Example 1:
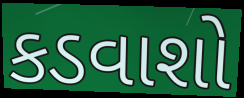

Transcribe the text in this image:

કડવાશો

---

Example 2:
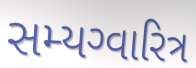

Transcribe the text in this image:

સમ્યગ્વારિત્ર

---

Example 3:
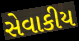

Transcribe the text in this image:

સેવાકીય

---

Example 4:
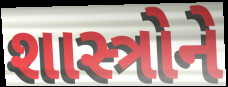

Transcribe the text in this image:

શાસ્ત્રોને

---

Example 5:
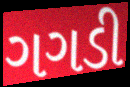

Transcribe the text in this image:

ગગડી